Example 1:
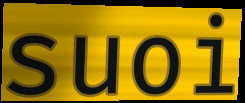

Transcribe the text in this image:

suoi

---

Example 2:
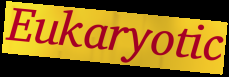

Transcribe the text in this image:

Eukaryotic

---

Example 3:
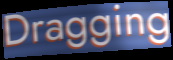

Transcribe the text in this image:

Dragging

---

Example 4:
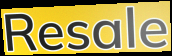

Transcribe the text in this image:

Resale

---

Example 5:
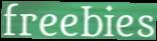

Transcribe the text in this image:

freebies